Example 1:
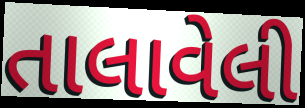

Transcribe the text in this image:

તાલાવેલી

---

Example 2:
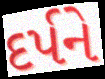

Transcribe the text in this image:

દર્પને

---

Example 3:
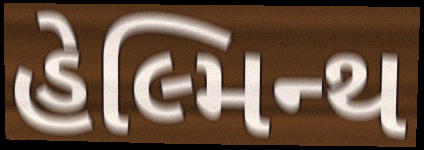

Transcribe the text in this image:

હેલ્મિન્થ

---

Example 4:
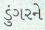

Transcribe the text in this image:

ડુંગરને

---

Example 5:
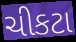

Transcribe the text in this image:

ચીકટા